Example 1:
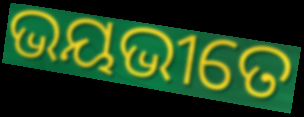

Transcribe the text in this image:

ଭୟଭୀତେ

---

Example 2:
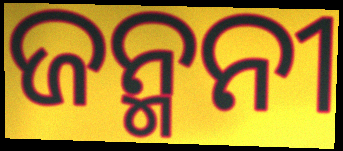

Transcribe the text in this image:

ଜନ୍ମନୀ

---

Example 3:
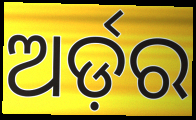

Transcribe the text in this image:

ଅର୍ଡ଼ର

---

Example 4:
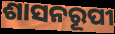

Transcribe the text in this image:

ଶାସନରୂପୀ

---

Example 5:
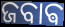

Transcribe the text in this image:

ଜବାଵ